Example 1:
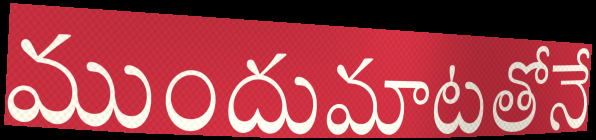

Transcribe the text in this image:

ముందుమాటతోనే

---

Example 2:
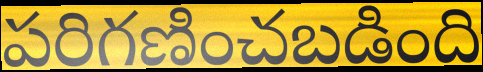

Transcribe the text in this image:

పరిగణించబడింది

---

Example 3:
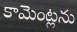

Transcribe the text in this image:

కామెంట్లను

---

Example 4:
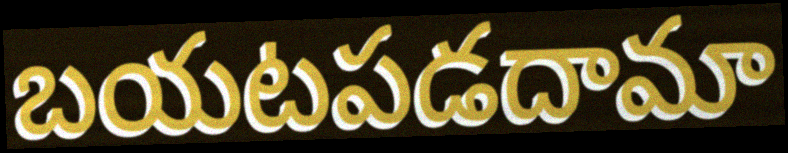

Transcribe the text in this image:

బయటపడదామా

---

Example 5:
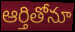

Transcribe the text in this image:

ఆర్తితోనూ